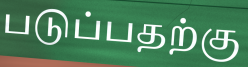
படுப்பதற்கு